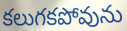
కలుగకపోవును